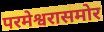
परमेश्वरासमोर